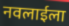
नवलाईला